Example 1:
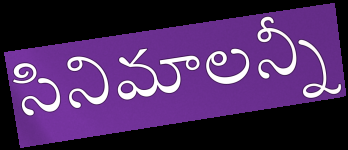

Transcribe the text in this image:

సినిమాలన్నీ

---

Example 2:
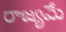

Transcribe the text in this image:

రాజ్యమే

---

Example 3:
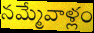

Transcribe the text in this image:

నమ్మేవాళ్లం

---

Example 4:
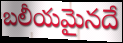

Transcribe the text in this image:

బలీయమైనదే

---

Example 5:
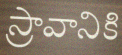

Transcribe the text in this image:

స్రావానికి